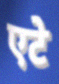
एटे